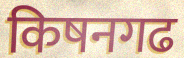
किषनगढ